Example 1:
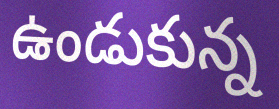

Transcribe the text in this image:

ఉండుకున్న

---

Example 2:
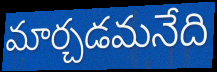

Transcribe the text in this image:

మార్చడమనేది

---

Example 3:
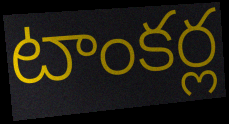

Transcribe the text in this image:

టాంకర్ల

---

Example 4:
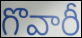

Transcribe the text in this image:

గొవారీ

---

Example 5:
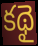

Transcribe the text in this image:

కథై